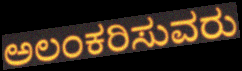
ಅಲಂಕರಿಸುವರು